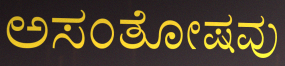
ಅಸಂತೋಷವು